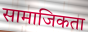
सामाजिकता